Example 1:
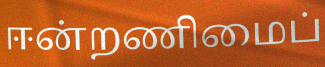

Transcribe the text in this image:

ஈன்றணிமைப்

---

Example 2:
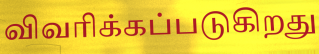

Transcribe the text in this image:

விவரிக்கப்படுகிறது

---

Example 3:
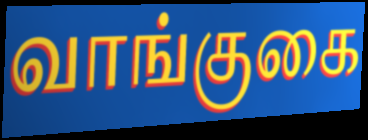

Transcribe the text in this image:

வாங்குகை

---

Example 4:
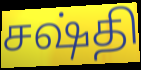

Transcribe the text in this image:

சஷ்தி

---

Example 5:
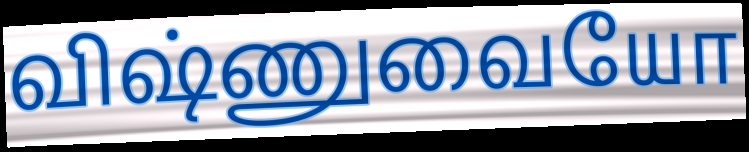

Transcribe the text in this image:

விஷ்ணுவையோ